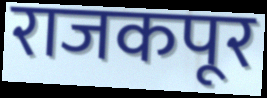
राजकपूर